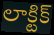
లాక్టిక్